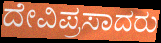
ದೇವಿಪ್ರಸಾದರು